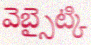
వెబ్సైట్కి